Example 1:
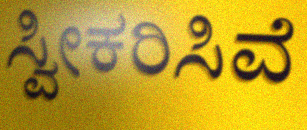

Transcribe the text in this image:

ಸ್ವೀಕರಿಸಿವೆ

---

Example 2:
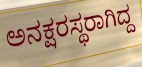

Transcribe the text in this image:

ಅನಕ್ಷರಸ್ಥರಾಗಿದ್ದ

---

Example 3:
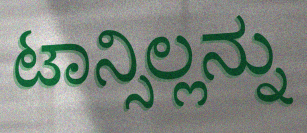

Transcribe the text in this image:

ಟಾನ್ಸಿಲ್ಲನ್ನು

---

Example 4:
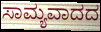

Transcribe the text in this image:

ಸಾಮ್ಯವಾದದ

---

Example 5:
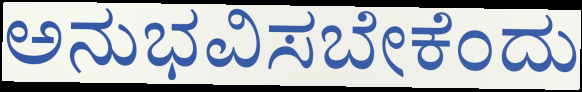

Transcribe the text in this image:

ಅನುಭವಿಸಬೇಕೆಂದು